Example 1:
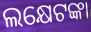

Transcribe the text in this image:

ଲକ୍ଷେଟଙ୍କା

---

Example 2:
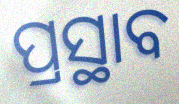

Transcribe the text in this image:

ପ୍ରସ୍ଥାବ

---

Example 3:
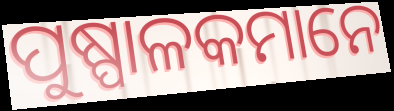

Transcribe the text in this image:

ପୁଷ୍ପାଳକମାନେ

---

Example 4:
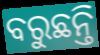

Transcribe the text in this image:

ବରୁଛନ୍ତି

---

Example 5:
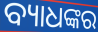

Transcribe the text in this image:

ବ୍ୟାଧଙ୍କର